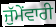
ਜੁੱਮੇਂਵਾਰੀ